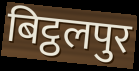
बिट्ठलपुर